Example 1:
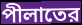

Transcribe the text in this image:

পীলাতের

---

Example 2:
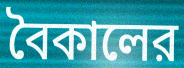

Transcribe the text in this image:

বৈকালের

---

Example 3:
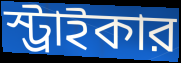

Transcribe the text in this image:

স্ট্রাইকার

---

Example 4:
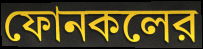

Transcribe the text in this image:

ফোনকলের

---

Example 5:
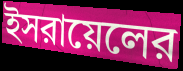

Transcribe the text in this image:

ইসরায়েলের